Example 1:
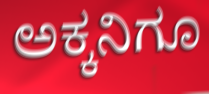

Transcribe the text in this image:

ಅಕ್ಕನಿಗೂ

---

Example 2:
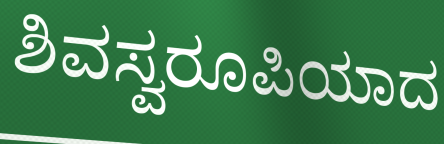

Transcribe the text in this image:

ಶಿವಸ್ವರೂಪಿಯಾದ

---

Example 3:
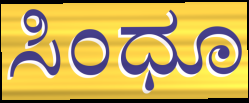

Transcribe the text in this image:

ಸಿಂಧೂ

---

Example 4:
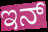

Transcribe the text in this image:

ಇನ್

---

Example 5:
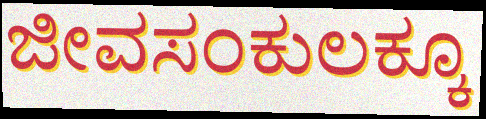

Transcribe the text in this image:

ಜೀವಸಂಕುಲಕ್ಕೂ